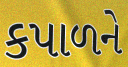
કપાળને